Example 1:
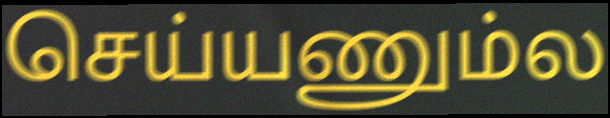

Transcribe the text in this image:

செய்யணும்ல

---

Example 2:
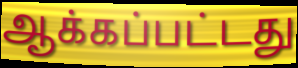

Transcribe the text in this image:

ஆக்கப்பட்டது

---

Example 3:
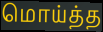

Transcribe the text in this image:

மொய்த்த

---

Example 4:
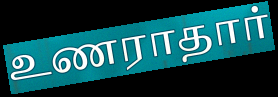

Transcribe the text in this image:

உணராதார்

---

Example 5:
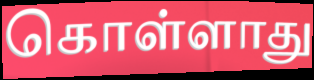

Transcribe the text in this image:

கொள்ளாது